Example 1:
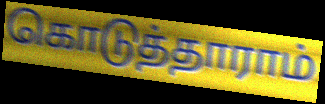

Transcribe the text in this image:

கொடுத்தாராம்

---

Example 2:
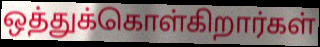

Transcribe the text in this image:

ஒத்துக்கொள்கிறார்கள்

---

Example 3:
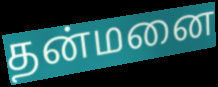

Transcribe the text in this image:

தன்மனை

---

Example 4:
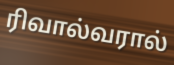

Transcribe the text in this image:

ரிவால்வரால்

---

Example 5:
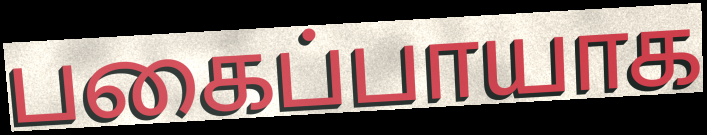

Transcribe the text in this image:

பகைப்பாயாக